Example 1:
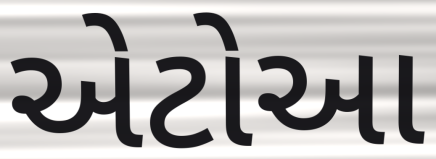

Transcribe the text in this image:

એટોઆ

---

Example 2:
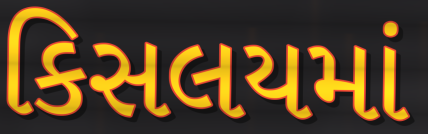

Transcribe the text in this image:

કિસલયમાં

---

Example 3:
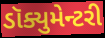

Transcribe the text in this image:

ડૉક્યુમેન્ટરી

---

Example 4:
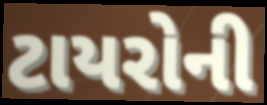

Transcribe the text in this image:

ટાયરોની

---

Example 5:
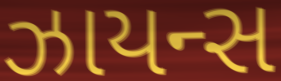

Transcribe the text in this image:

ઝાયન્સ